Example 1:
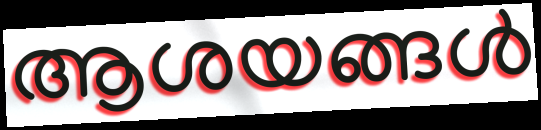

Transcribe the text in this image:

ആശയങ്ങൾ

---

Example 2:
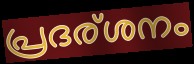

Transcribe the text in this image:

പ്രദര്ശനം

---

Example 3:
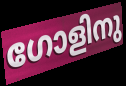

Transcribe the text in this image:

ഗോളിനു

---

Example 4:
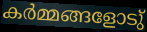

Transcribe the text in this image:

കർമ്മങ്ങളോടു്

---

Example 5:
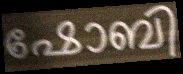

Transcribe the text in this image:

ഷോബി